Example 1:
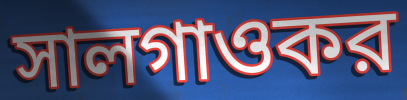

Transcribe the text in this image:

সালগাওকর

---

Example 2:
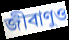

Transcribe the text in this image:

জীবাণুও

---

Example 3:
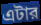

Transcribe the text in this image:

এটার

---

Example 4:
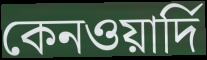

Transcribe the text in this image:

কেনওয়ার্দি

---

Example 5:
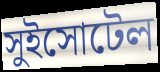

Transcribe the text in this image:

সুইসোটেল